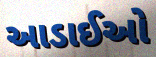
આડાઈઓ